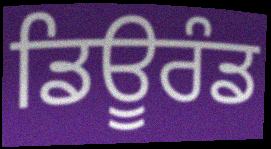
ਡਿਊਰੰਡ